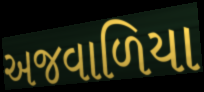
અજવાળિયા